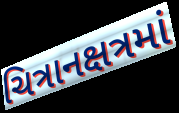
ચિત્રાનક્ષત્રમાં